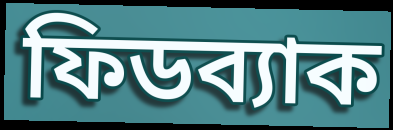
ফিডব্যাক